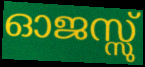
ഓജസ്സു്